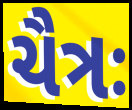
ચૈત્રઃ